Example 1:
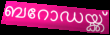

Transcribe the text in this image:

ബറോഡയ്ക്ക്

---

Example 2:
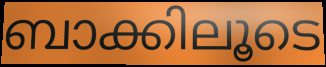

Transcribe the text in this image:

ബാക്കിലൂടെ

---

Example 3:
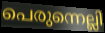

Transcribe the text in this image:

പെരുന്നെല്ലി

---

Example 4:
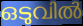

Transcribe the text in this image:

ഒടുവിൽ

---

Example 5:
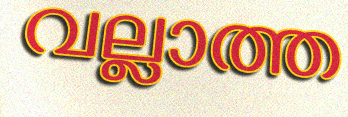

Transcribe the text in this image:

വല്ലാത്ത